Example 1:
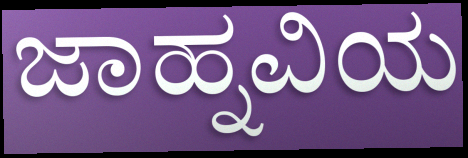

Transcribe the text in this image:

ಜಾಹ್ನವಿಯ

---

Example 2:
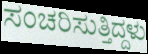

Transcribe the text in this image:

ಸಂಚರಿಸುತ್ತಿದ್ದಳು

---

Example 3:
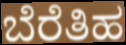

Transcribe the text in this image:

ಬೆರೆತಿಹ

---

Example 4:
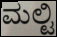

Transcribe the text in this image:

ಮಲ್ಟಿ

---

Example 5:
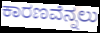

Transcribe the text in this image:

ಕಾರಣವೆನ್ನಲು